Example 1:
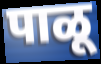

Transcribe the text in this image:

पाळू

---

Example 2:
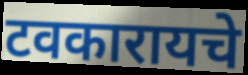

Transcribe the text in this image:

टवकारायचे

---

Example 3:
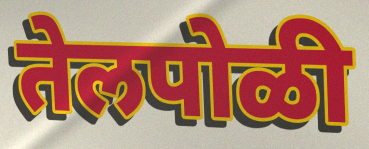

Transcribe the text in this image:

तेलपोळी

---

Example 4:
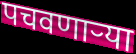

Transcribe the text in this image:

पचवणाऱ्या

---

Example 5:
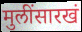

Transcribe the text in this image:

मुलींसारखं